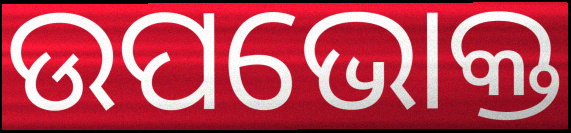
ଉପଭୋକ୍ତ